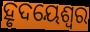
ହୃଦୟେଶ୍ୱର